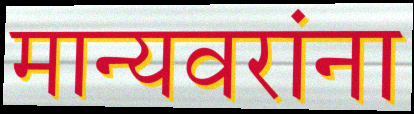
मान्यवरांना